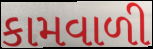
કામવાળી